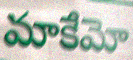
మాకేమో